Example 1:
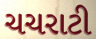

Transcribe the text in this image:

ચચરાટી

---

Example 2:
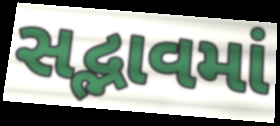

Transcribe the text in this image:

સદ્ભાવમાં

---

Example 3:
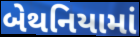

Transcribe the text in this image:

બેથનિયામાં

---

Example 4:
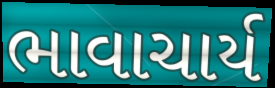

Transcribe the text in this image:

ભાવાચાર્ય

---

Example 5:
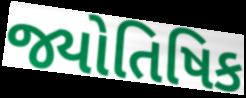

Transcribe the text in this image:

જ્યોતિષિક